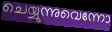
ചെയ്യുന്നുവെന്നോ